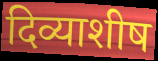
दिव्याशीष